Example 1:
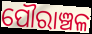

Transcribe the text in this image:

ପୌରାଞ୍ଚଳ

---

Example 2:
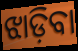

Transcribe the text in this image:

ଝାଡ଼ିବା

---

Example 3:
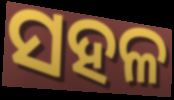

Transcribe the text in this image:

ସହଳ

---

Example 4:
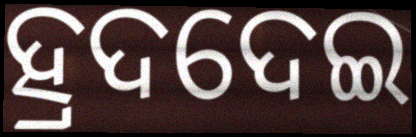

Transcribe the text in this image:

ହ୍ରଦଦେଇ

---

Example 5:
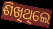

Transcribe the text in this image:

ଶିଖିଥିଲେ